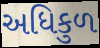
અધિકુળ